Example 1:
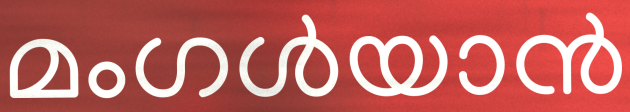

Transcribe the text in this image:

മംഗൾയാൻ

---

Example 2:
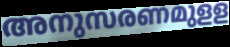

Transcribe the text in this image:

അനുസരണമുളള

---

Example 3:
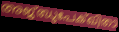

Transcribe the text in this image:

അജ്ഝുപേക്ഖിതാ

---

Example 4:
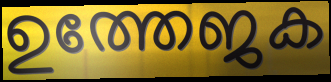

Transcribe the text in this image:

ഉത്തേജക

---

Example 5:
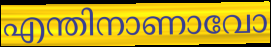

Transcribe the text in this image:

എന്തിനാണാവോ